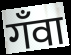
गँवा